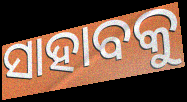
ସାହାବକୁ